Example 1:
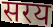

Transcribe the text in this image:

सरय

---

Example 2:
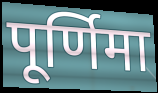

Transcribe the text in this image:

पूर्णिमा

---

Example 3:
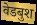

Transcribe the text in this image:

वेडबुश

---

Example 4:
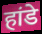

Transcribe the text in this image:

हांडे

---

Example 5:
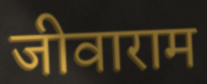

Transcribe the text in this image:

जीवाराम